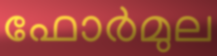
ഫോർമുല